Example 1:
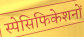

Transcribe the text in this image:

स्पेसिफिकेशनों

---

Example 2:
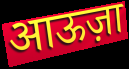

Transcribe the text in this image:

आऊज़ा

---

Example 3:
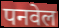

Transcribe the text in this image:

पनवेल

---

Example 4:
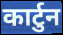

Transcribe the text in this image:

कार्टुन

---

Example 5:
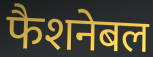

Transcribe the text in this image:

फैशनेबल